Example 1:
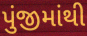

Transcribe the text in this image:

પુંજીમાંથી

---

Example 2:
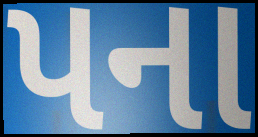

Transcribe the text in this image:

પના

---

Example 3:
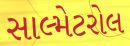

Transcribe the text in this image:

સાલ્મેટરોલ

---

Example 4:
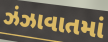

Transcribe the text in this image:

ઝંઝાવાતમાં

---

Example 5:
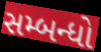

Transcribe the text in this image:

સમ્બન્ધો